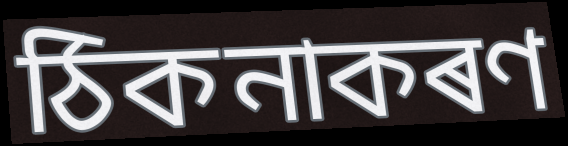
ঠিকনাকৰণ